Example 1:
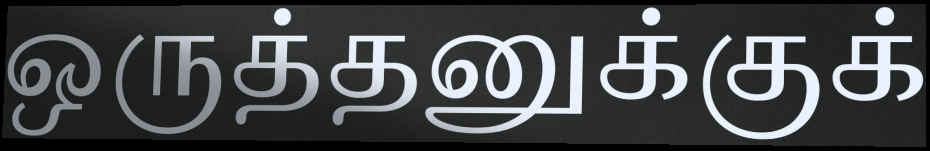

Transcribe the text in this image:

ஒருத்தனுக்குக்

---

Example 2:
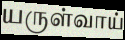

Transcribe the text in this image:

யருள்வாய்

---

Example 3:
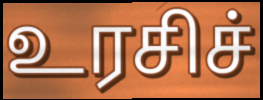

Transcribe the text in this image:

உரசிச்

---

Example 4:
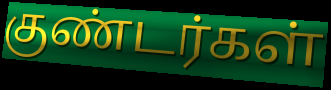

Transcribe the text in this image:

குண்டர்கள்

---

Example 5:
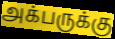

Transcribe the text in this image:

அக்பருக்கு